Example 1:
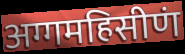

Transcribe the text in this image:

अग्गमहिसीणं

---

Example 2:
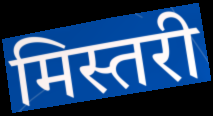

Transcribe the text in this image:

मिस्तरी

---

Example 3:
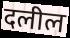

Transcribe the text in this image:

दलील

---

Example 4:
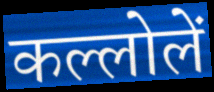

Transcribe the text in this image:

कल्लोलें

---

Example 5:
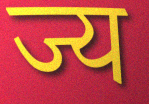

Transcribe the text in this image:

ज्य